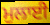
ਮੁਲਾਈ